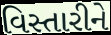
વિસ્તારીને